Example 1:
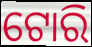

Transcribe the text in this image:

ଟୋରି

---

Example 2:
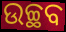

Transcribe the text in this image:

ଉଚ୍ଛବ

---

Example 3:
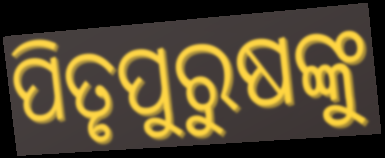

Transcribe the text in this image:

ପିତୃପୁରୁଷଙ୍କୁ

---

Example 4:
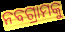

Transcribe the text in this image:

ନବଗ୍ରାମକୁ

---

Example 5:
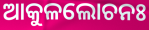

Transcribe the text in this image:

ଆକୁଳଲୋଚନଃ